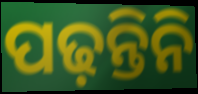
ପଢ଼ନ୍ତିନି